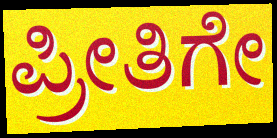
ಪ್ರೀತಿಗೇ